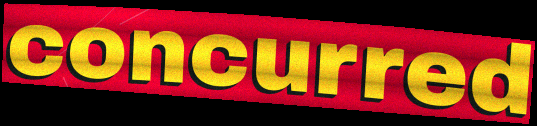
concurred